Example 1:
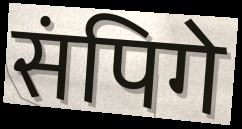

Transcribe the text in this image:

संपिगे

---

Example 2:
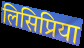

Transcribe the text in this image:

लिसिप्रिया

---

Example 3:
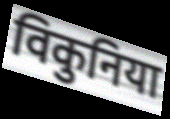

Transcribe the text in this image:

विकुनिया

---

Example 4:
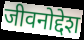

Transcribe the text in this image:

जीवनोद्देश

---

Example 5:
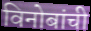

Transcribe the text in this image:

विनोबांची